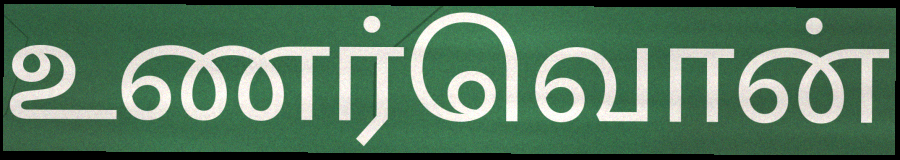
உணர்வொன்